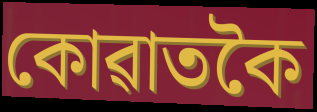
কোৱাতকৈ